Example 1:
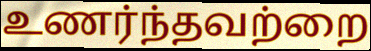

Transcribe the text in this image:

உணர்ந்தவற்றை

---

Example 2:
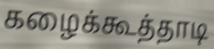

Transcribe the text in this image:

கழைக்கூத்தாடி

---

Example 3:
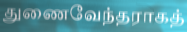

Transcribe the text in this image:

துணைவேந்தராகத்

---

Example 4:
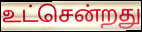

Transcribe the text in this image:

உட்சென்றது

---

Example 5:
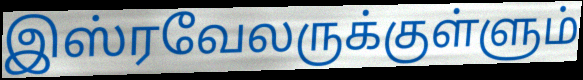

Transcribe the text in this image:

இஸ்ரவேலருக்குள்ளும்